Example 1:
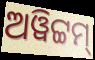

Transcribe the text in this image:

ଅୱିଟ୍ଟମ୍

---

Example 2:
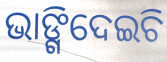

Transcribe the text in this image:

ଭାଙ୍ଗିଦେଇଚି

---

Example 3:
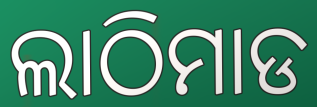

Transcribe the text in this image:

ଲାଠିମାଡ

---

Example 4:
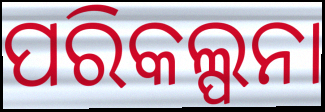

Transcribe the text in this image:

ପରିକଲ୍ପନା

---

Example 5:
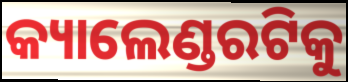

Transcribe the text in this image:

କ୍ୟାଲେଣ୍ଡରଟିକୁ